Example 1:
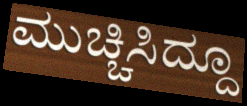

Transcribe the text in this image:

ಮುಚ್ಚಿಸಿದ್ದೂ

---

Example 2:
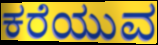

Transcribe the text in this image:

ಕರೆಯುವ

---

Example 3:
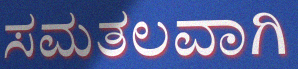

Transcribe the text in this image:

ಸಮತಲವಾಗಿ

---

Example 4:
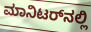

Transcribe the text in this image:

ಮಾನಿಟರ್‌ನಲ್ಲಿ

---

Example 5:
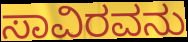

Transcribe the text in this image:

ಸಾವಿರವನು